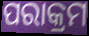
ପରାକ୍ରମ